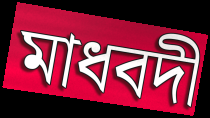
মাধবদী